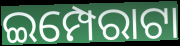
ଇମ୍ପେରାଟା